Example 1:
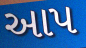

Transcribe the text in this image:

આપ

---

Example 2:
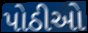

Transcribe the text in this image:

પોઠીઓ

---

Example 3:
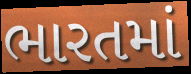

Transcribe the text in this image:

ભારતમાં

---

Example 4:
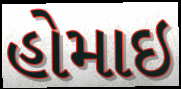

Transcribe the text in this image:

હોમાઇ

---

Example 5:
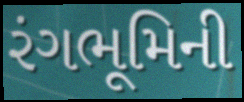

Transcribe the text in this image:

રંગભૂમિની